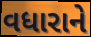
વધારાને